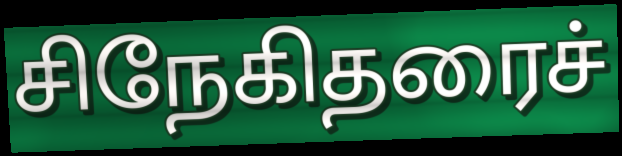
சிநேகிதரைச்